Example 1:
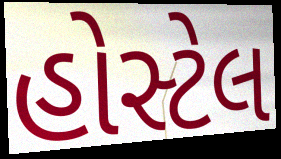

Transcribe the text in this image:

હોસ્ટેલ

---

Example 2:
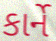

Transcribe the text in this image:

કાર્ને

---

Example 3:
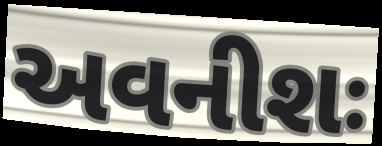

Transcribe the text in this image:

અવનીશઃ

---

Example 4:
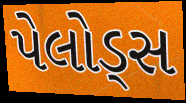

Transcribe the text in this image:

પેલોડ્સ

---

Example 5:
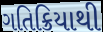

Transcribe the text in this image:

ગતિક્રિયાથી